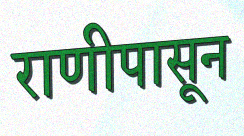
राणीपासून